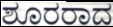
ಶೂರರಾದ